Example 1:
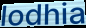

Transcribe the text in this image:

lodhia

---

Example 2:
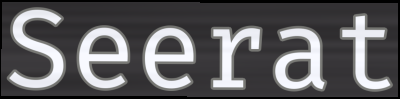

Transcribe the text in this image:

Seerat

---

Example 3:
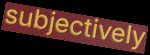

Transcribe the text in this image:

subjectively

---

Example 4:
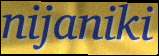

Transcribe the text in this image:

nijaniki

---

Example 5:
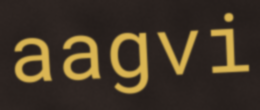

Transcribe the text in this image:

aagvi